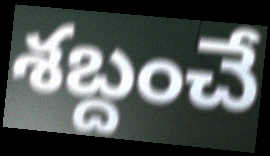
శబ్దంచే